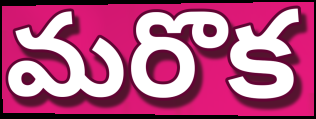
మరొక